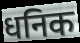
धनिक